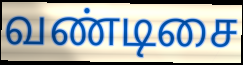
வண்டிசை